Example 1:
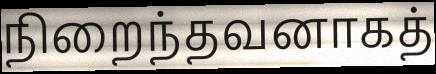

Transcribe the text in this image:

நிறைந்தவனாகத்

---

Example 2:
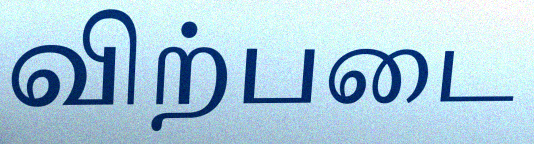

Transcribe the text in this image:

விற்படை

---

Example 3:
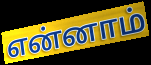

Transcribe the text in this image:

என்னாம்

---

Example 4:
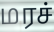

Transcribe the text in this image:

மரச்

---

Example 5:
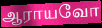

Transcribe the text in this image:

ஆராயவோ